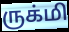
ருக்மி